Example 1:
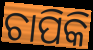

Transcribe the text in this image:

ଚାପିକି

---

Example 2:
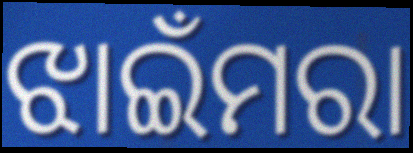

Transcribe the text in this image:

ଝାଇଁମରା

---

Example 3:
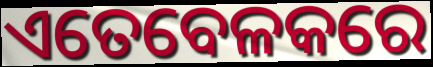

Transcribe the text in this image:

ଏତେବେଳକରେ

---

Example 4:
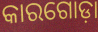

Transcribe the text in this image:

କାରଗୋଡ଼ା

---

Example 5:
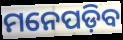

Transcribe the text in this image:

ମନେପଡ଼ିବ